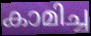
കാമിച്ച